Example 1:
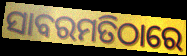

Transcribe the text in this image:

ସାବରମତିଠାରେ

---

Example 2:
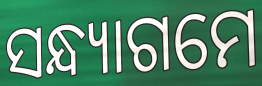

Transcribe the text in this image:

ସନ୍ଧ୍ୟାଗମେ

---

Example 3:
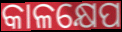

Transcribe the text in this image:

କାଳକ୍ଷେପ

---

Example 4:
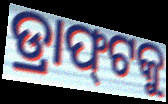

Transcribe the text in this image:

ଡ୍ରାଫ୍‌ଟକୁ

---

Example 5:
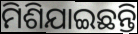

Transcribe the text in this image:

ମିଶିଯାଇଛନ୍ତି